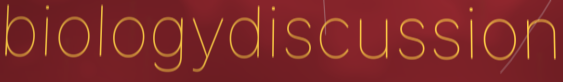
biologydiscussion